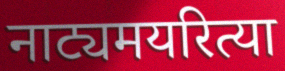
नाट्यमयरित्या